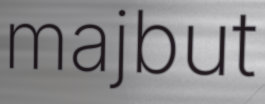
majbut